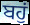
ਬਹੁਂ